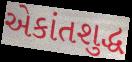
એકાંતશુદ્ધ